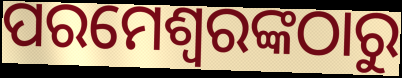
ପରମେଶ୍ଵରଙ୍କଠାରୁ